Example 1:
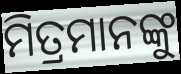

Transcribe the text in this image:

ମିତ୍ରମାନଙ୍କୁ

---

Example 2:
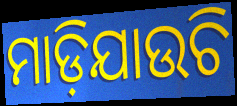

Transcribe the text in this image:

ମାଡ଼ିଯାଉଚି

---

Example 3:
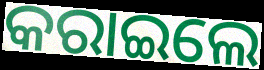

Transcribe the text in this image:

କରାଇଲେ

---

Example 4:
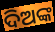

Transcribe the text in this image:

ଦିଅଙ୍କ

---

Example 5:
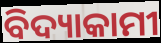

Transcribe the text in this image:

ବିଦ୍ୟାକାମୀ